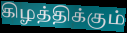
கிழத்திக்கும்